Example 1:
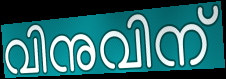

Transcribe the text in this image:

വിനുവിന്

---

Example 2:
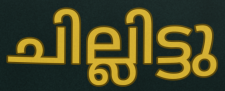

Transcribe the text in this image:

ചില്ലിട്ടു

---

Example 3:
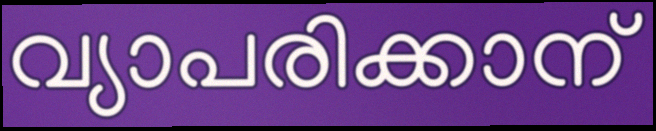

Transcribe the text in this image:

വ്യാപരിക്കാന്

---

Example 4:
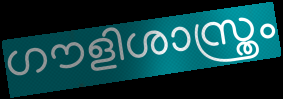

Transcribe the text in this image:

ഗൗളിശാസ്ത്രം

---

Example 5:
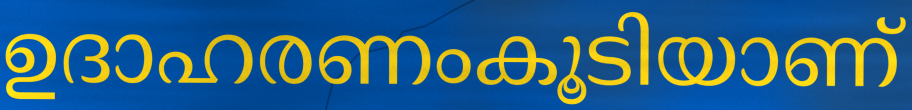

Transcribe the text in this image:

ഉദാഹരണംകൂടിയാണ്